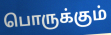
பொருக்கும்